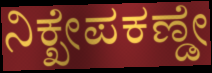
ನಿಕ್ಖೇಪಕಣ್ಡೇ